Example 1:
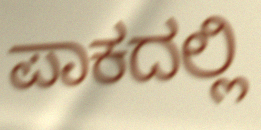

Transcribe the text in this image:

ಪಾಕದಲ್ಲಿ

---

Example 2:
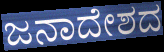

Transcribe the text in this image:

ಜನಾದೇಶದ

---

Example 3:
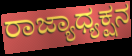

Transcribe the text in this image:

ರಾಜ್ಯಾಧ್ಯಕ್ಷನ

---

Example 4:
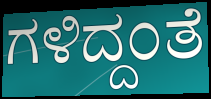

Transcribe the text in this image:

ಗಳಿದ್ದಂತೆ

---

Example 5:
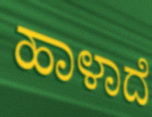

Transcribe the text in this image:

ಹಾಳಾದೆ